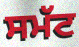
ਸਮੱਟ